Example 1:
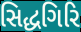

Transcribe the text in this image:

સિદ્ધગિરિ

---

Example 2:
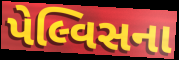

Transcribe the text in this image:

પેલ્વિસના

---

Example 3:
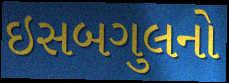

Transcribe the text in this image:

ઇસબગુલનો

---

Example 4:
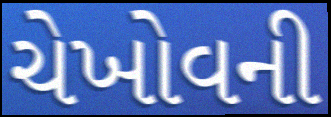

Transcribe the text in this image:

ચેખોવની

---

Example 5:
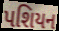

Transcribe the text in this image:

પશિયન